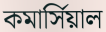
কমার্সিয়াল